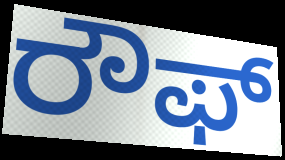
ರೌಫ್